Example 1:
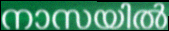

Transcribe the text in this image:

നാസയിൽ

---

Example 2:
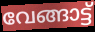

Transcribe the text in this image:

വേങ്ങാട്ട്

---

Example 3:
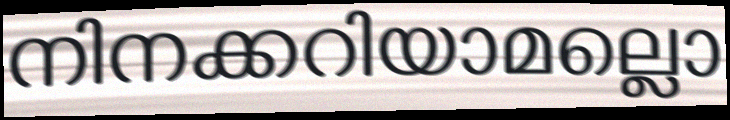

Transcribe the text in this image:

നിനക്കറിയാമല്ലൊ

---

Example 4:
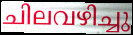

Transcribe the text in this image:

ചിലവഴിച്ചു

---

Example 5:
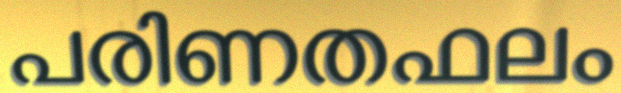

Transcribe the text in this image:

പരിണതഫലം